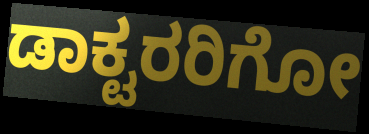
ಡಾಕ್ಟರರಿಗೋ